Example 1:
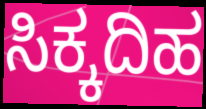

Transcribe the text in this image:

ಸಿಕ್ಕದಿಹ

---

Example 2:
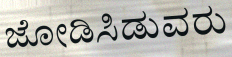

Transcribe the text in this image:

ಜೋಡಿಸಿಡುವರು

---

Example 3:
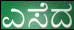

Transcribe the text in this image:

ಎಸೆದ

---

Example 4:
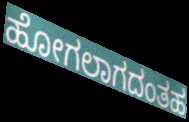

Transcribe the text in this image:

ಹೋಗಲಾಗದಂತಹ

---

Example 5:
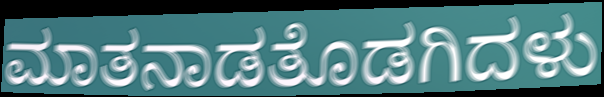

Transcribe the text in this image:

ಮಾತನಾಡತೊಡಗಿದಳು